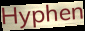
Hyphen